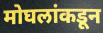
मोघलांकडून